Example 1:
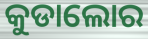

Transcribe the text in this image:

କୁଡାଲୋର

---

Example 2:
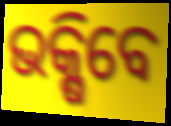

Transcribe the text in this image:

ଭକ୍ଷିବେ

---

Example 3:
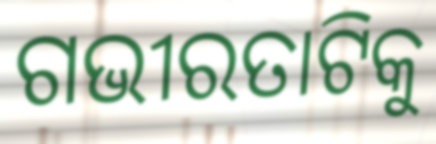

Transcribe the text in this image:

ଗଭୀରତାଟିକୁ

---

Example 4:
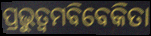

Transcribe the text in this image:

ପ୍ରଭୁତ୍ୱମବିବେକିତା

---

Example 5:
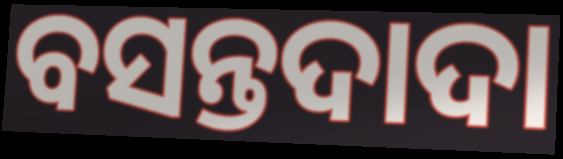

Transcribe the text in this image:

ବସନ୍ତଦାଦା